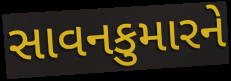
સાવનકુમારને